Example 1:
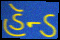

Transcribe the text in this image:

હૅન્ડ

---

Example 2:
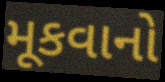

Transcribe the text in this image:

મૂકવાનો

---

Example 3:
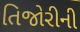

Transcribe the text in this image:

તિજોરીની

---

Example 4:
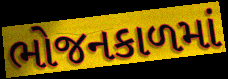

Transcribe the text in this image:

ભોજનકાળમાં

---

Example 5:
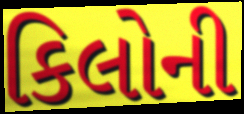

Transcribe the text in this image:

કિલોની